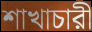
শাখাচারী